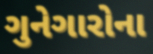
ગુનેગારોના